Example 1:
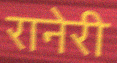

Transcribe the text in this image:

रानेरी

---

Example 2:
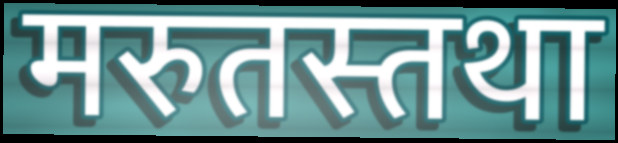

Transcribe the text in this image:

मरुतस्तथा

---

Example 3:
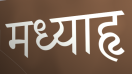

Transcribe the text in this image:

मध्याहृ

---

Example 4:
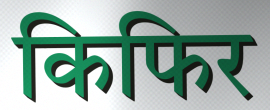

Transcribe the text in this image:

किफिर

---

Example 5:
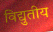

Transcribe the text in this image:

विद्युतीय